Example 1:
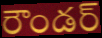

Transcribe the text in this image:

రౌండర్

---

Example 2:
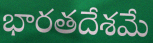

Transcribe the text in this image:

భారతదేశమే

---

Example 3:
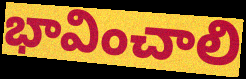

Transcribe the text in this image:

భావించాలి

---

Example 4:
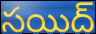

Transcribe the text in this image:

సయిద్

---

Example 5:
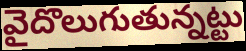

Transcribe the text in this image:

వైదొలుగుతున్నట్టు